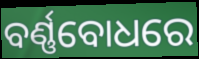
ବର୍ଣ୍ଣବୋଧରେ